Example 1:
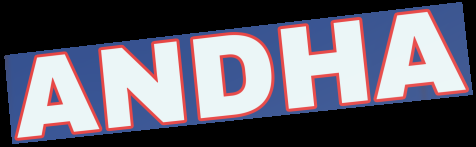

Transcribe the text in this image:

ANDHA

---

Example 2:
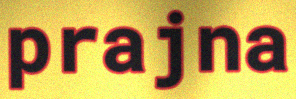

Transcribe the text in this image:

prajna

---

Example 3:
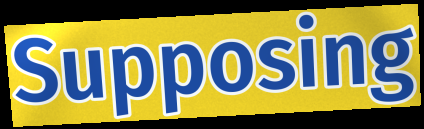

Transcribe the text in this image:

Supposing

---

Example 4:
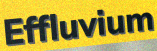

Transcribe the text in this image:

Effluvium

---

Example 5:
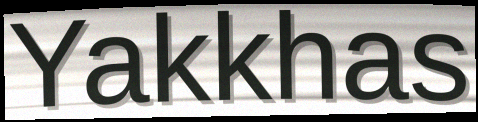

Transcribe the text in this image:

Yakkhas